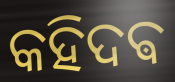
କହିଦଵ